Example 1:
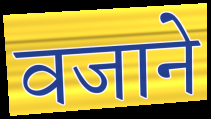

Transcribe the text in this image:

वजाने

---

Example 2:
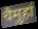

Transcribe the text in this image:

चैमुहां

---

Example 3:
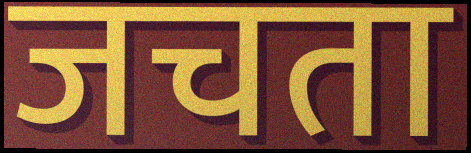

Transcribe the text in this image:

जचता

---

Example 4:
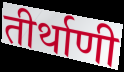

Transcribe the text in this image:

तीर्थाणी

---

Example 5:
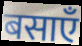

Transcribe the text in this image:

बसाएँ